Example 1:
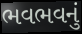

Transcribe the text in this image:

ભવભવનું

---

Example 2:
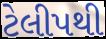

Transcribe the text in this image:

ટેલીપથી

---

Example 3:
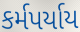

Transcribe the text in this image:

કર્મપર્યાય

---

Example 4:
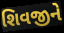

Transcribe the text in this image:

શિવજીને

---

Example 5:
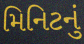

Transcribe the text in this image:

મિનિટનું